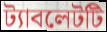
ট্যাবলেটটি